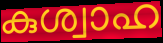
കുശ്വാഹ